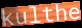
kulthe